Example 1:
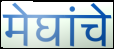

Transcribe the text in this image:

मेघांचे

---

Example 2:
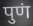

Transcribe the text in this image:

पुणं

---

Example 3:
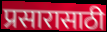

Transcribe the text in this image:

प्रसारासाठी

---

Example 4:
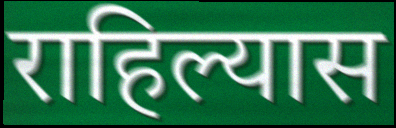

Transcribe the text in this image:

राहिल्यास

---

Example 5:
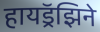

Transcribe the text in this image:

हायड्रॅझिने